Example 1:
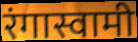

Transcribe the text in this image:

रंगास्वामी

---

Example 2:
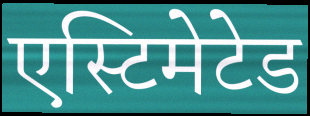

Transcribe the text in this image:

एस्टिमेटेड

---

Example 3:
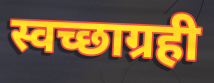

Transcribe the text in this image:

स्वच्छाग्रही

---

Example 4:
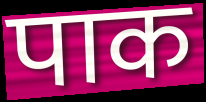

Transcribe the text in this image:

पाक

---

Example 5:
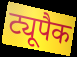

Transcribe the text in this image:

ट्यूपैक